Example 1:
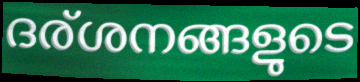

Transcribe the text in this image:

ദര്ശനങ്ങളുടെ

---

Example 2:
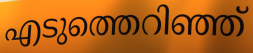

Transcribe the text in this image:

എടുത്തെറിഞ്ഞ്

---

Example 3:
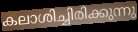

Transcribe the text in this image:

കലാശിച്ചിരിക്കുന്നു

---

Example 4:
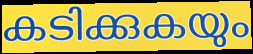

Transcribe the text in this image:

കടിക്കുകയും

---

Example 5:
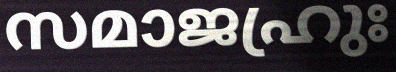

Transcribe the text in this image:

സമാജഹ്രുഃ